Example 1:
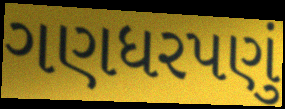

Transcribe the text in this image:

ગણધરપણું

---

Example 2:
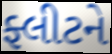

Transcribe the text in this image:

ફ્લીટને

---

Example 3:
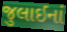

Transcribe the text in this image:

જુલાઈનાં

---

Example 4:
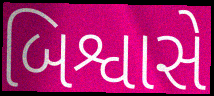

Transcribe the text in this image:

બિશ્વાસે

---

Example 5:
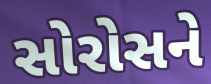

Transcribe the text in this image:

સોરોસને